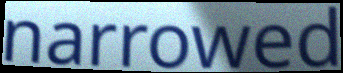
narrowed